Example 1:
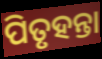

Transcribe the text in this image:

ପିତୃହନ୍ତା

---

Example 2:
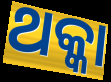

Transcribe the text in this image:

ଥକ୍କା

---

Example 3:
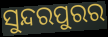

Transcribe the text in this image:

ସୁନ୍ଦରପୁରର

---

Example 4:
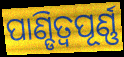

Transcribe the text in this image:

ପାଣ୍ଡିତ୍ୱପୂର୍ଣ୍ଣ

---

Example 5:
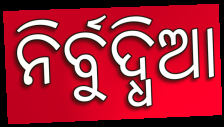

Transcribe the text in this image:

ନିର୍ବୁଦ୍ଧିଆ